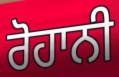
ਰੋਹਾਨੀ